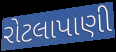
રોટલાપાણી